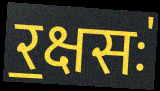
र॒क्षसः॑